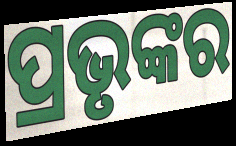
ପ୍ରଭୃଙ୍କର